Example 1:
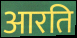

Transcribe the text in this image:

आरति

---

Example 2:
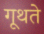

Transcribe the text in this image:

गूथते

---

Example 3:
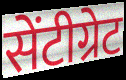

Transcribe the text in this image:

सेंटीग्रेट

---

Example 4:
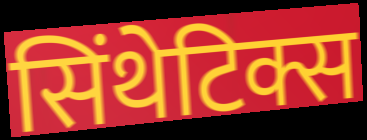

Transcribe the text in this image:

सिंथेटिक्स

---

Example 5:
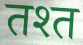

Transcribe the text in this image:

तश्त